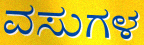
ವಸುಗಳ